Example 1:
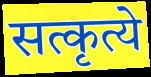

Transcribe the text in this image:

सत्कृत्ये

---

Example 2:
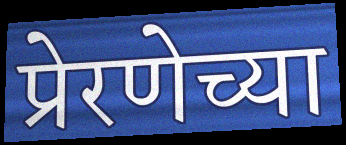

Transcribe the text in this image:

प्रेरणेच्या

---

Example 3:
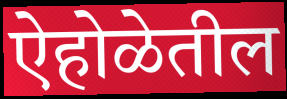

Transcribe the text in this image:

ऐहोळेतील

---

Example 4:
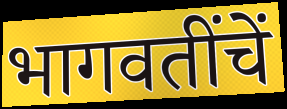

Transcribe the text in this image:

भागवतींचें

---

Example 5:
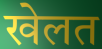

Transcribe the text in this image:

खेलत